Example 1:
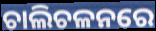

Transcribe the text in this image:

ଚାଲିଚଳନରେ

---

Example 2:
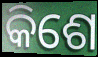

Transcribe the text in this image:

କିଶେ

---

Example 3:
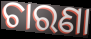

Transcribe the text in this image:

ଚାରଣା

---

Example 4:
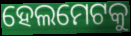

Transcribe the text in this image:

ହେଲମେଟକୁ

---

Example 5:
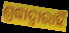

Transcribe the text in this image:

ଶ୍ରଦ୍ଧାଦ୍ୱାରାହିଁ